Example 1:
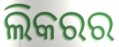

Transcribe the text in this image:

ଲିକରର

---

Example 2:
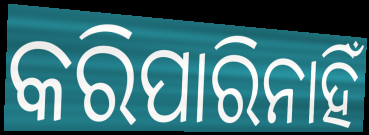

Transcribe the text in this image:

କରିପାରିନାହିଁ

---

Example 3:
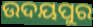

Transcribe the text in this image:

ଉଦୟପୁର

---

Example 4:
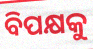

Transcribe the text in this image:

ବିପକ୍ଷକୁ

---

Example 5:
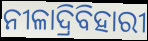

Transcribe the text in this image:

ନୀଳାଦ୍ରିବିହାରୀ